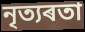
নৃত্যৰতা